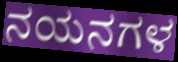
ನಯನಗಳ